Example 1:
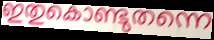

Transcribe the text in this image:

ഇതുകൊണ്ടുതന്നെ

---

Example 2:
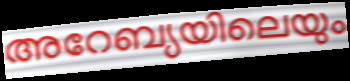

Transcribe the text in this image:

അറേബ്യയിലെയും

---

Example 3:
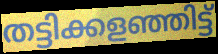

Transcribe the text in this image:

തട്ടിക്കളഞ്ഞിട്ട്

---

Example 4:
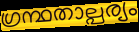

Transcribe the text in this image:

ഗ്രന്ഥതാല്പര്യം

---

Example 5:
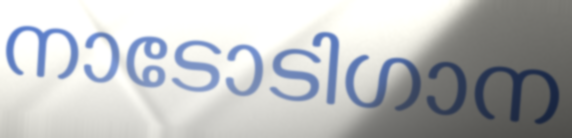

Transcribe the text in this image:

നാടോടിഗാന